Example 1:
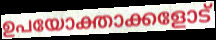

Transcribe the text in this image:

ഉപയോക്താക്കളോട്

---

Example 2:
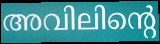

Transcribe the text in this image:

അവിലിന്റെ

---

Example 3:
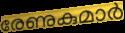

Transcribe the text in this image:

രേണുകുമാർ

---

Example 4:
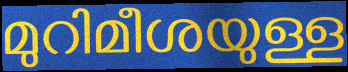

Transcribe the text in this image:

മുറിമീശയുള്ള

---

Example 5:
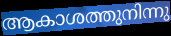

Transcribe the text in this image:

ആകാശത്തുനിന്നു